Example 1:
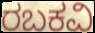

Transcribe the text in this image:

ರಬಕವಿ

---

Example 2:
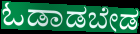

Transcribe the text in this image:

ಓಡಾಡಬೇಡ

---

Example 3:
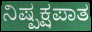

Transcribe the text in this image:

ನಿಷ್ಪಕ್ಷಪಾತ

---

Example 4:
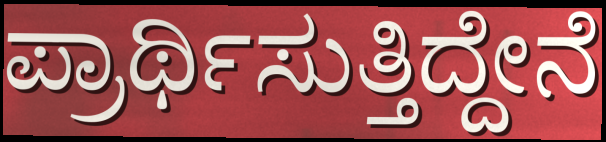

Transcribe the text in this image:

ಪ್ರಾರ್ಥಿಸುತ್ತಿದ್ದೇನೆ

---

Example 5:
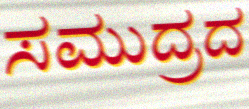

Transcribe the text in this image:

ಸಮುದ್ರದ